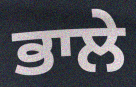
ਭਾਲੇ